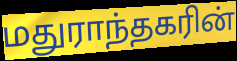
மதுராந்தகரின்